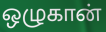
ஒழுகான்